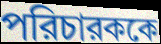
পরিচারককে